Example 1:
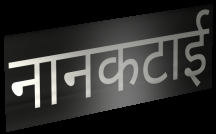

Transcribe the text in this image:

नानकटाई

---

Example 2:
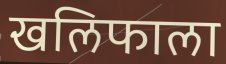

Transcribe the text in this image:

खलिफाला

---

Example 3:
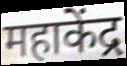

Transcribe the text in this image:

महाकेंद्र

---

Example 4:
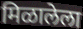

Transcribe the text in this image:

मिळालेला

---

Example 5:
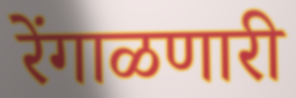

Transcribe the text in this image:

रेंगाळणारी